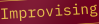
Improvising